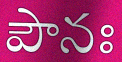
పౌనః